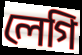
লেগি